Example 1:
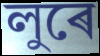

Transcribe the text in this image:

লুৰে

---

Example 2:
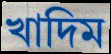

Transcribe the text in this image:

খাদিম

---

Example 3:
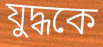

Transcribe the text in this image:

যুদ্ধকে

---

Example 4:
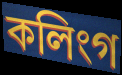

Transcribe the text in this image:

কলিংগ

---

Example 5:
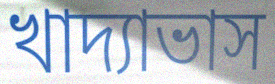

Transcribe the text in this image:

খাদ্যাভাস